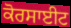
ਕੋਰਸਾਈਟ